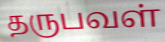
தருபவள்